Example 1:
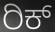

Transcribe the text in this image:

ರಿಕ್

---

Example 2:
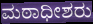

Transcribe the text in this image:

ಮಠಾಧೀಶರು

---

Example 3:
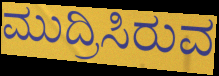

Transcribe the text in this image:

ಮುದ್ರಿಸಿರುವ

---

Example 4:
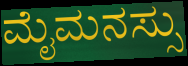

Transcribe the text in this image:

ಮೈಮನಸ್ಸು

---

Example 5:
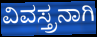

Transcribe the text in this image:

ವಿವಸ್ತ್ರನಾಗಿ